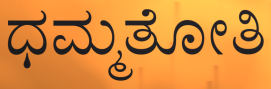
ಧಮ್ಮತೋತಿ